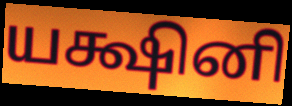
யக்ஷினி